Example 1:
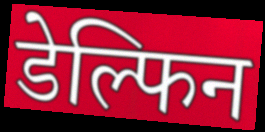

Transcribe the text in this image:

डेल्फिन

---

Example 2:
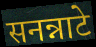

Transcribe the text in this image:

सनन्नाटे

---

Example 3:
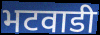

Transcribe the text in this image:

भटवाडी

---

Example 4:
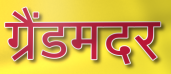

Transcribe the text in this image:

ग्रैंडमदर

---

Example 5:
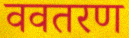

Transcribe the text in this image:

ववतरण